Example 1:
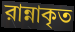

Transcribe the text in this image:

রান্নাকৃত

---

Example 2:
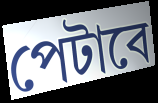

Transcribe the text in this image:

পেটাবে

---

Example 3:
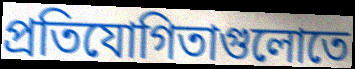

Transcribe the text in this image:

প্রতিযোগিতাগুলোতে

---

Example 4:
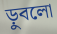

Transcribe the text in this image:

ড়ুবলো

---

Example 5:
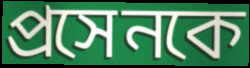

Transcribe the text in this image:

প্রসেনকে